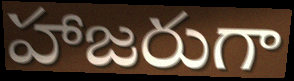
హాజరుగా